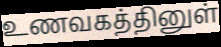
உணவகத்தினுள்